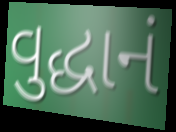
વુદ્ધાનં